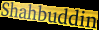
Shahbuddin